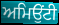
ਅਮਿਉਂਟੀ